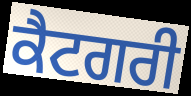
ਕੈਟਗਰੀ